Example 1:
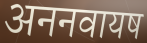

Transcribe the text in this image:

अननवायष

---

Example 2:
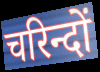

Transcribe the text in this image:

चरिन्दों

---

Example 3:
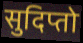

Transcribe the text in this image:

सुदिप्तो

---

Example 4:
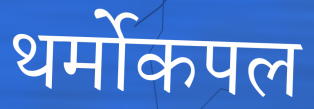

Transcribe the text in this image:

थर्मोकपल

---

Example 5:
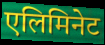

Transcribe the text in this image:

एलिमिनेट